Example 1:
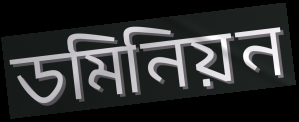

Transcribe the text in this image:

ডমিনিয়ন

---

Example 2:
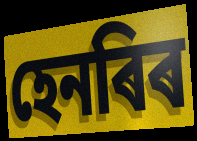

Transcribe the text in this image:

হেনৰিৰ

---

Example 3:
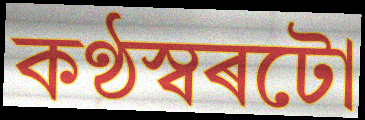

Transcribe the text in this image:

কণ্ঠস্বৰটো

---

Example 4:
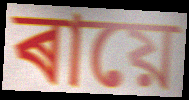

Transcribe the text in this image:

ৰায়ে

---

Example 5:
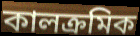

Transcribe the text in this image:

কালক্ৰমিক